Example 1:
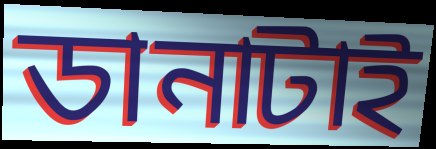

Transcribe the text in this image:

ডানাটাই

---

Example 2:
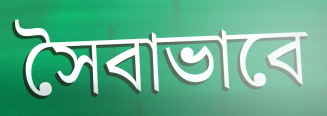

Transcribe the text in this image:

সৈবাভাবে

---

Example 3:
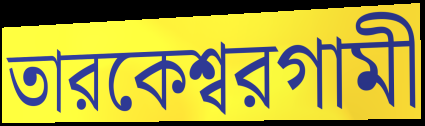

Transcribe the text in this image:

তারকেশ্বরগামী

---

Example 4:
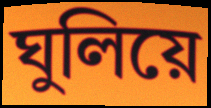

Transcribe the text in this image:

ঘুলিয়ে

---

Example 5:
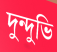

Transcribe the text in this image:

দুন্দুভি